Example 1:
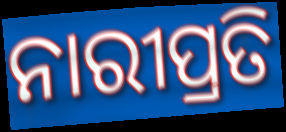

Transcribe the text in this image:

ନାରୀପ୍ରତି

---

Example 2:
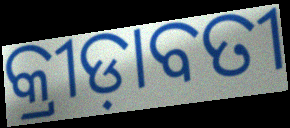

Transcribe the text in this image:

କ୍ରୀଡ଼ାବତୀ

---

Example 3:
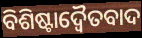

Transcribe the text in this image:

ବିଶିଷ୍ଟାଦ୍ୱୈତବାଦ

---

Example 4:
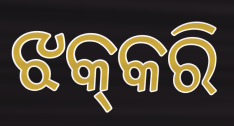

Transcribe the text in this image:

ଝକ୍‌କରି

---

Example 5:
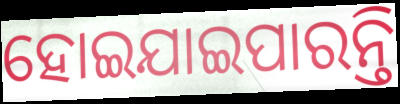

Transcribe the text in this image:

ହୋଇଯାଇପାରନ୍ତି